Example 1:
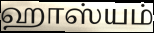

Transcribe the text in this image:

ஹாஸ்யம்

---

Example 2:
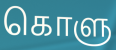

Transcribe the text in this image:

கொளு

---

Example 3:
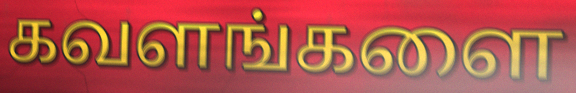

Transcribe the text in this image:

கவளங்களை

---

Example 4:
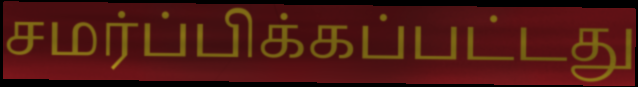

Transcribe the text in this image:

சமர்ப்பிக்கப்பட்டது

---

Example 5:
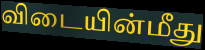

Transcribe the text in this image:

விடையின்மீது